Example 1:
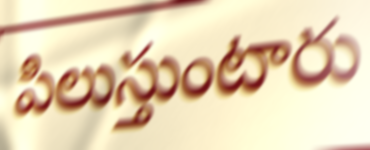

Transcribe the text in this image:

పిలుస్తుంటారు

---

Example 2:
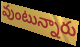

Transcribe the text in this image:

వుంటున్నారు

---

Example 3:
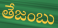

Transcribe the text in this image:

తేజంబు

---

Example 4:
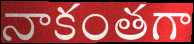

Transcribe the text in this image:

నాకంతగా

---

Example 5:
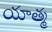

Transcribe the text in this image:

యాత్మ